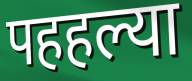
पहहल्या